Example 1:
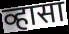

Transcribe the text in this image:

व्हासा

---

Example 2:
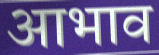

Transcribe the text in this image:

आभाव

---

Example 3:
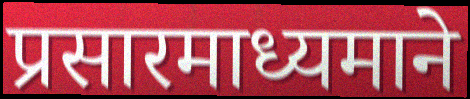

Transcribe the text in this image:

प्रसारमाध्यमाने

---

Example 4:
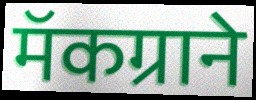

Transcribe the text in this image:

मॅकग्राने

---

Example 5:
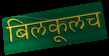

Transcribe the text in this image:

बिलकूलच